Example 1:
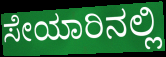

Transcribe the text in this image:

ಸೇಯಾರಿನಲ್ಲಿ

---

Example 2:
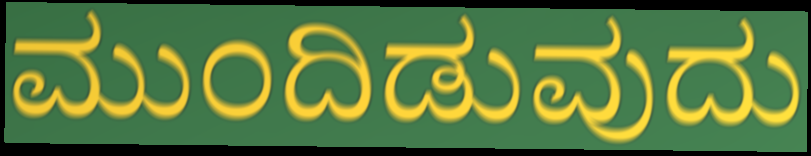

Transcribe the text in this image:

ಮುಂದಿಡುವುದು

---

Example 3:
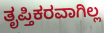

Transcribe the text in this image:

ತೃಪ್ತಿಕರವಾಗಿಲ್ಲ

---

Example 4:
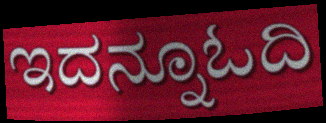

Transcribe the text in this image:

ಇದನ್ನೂಓದಿ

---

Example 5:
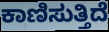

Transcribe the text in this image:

ಕಾಣಿಸುತ್ತಿದೆ